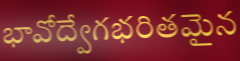
భావోద్వేగభరితమైన